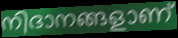
നിദാനങ്ങളാണ്